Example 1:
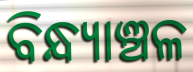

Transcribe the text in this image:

ବିନ୍ଧ୍ୟାଞ୍ଚଳ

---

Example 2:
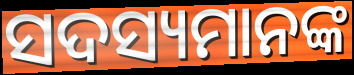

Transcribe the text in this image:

ସଦସ୍ୟମାନଙ୍କ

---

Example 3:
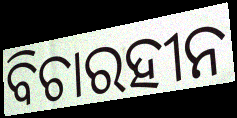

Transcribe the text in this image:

ବିଚାରହୀନ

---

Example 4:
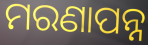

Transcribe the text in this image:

ମରଣାପନ୍ନ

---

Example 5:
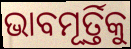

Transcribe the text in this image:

ଭାବମୂର୍ତ୍ତିକୁ